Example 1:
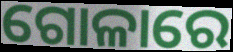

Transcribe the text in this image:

ଗୋଳାରେ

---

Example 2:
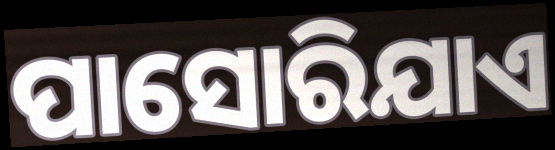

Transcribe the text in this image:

ପାସୋରିଯାଏ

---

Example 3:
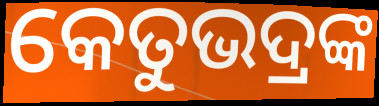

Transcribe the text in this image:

କେତୁଭଦ୍ରଙ୍କ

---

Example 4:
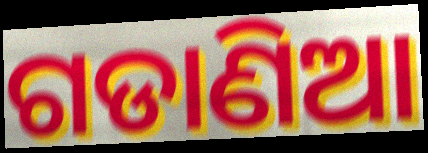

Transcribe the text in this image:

ଗଡାଣିଆ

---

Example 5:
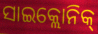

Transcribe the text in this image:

ସାଇକ୍ଲୋନିକ୍